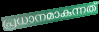
പ്രധാനമാകുന്നത്